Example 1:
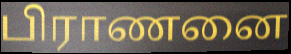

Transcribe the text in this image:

பிராணனை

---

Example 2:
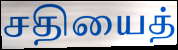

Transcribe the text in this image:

சதியைத்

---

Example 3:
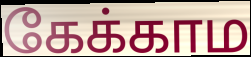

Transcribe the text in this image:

கேக்காம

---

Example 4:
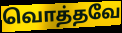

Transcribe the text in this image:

வொத்தவே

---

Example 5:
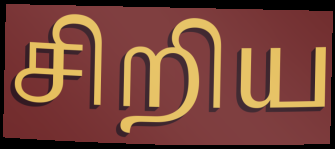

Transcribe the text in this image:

சிறிய